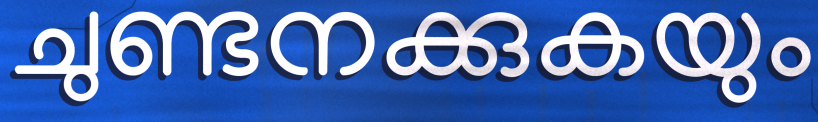
ചുണ്ടനക്കുകയും